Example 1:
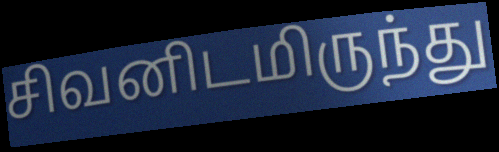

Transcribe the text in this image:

சிவனிடமிருந்து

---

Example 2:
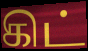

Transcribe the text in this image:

கிட்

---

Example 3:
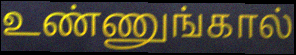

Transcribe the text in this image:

உண்ணுங்கால்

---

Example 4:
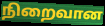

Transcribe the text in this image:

நிறைவான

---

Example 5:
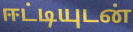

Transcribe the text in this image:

ஈட்டியுடன்